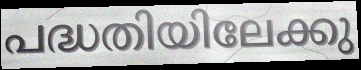
പദ്ധതിയിലേക്കു